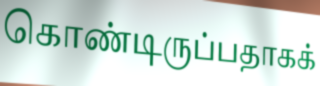
கொண்டிருப்பதாகக்